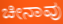
ಚೀನಾವು